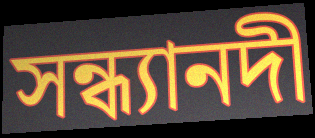
সন্ধ্যানদী